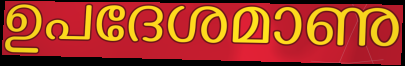
ഉപദേശമാണു